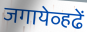
जगायेव्हढें